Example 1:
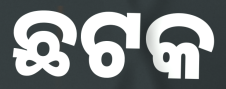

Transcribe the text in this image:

ଛଟକ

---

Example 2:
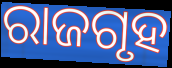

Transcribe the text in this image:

ରାଜଗୃହ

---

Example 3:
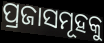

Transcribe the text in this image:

ପ୍ରଜାସମୂହକୁ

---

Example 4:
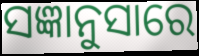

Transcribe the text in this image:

ସଜ୍ଞାନୁସାରେ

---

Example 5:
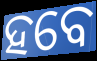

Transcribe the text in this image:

ହବେ